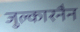
जुल्कारनैन